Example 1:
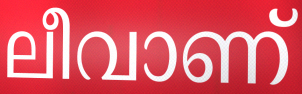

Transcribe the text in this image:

ലീവാണ്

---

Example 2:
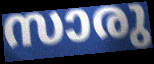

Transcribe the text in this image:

സാരു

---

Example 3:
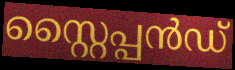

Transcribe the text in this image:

സ്റ്റൈപ്പൻഡ്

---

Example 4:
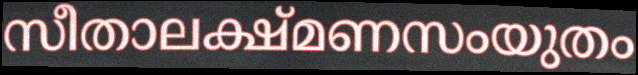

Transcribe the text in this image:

സീതാലക്ഷ്മണസംയുതം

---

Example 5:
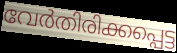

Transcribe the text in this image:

വേർതിരിക്കപ്പെട്ട